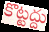
కొట్టద్దు